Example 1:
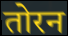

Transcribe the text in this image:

तोरन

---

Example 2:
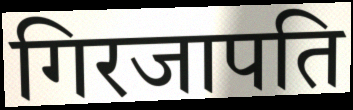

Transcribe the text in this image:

गिरजापति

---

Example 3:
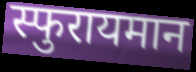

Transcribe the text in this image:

स्फुरायमान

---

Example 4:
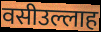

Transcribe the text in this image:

वसीउल्लाह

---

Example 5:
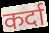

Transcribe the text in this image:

कर्दा